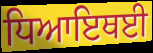
ਧਿਆਇਥਈ